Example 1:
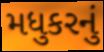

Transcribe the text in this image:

મધુકરનું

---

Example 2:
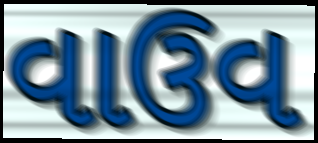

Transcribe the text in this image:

વાઉવ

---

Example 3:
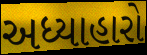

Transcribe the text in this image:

અધ્યાહારો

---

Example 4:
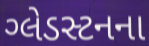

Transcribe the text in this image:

ગ્લેડસ્ટનના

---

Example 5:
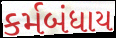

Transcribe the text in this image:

કર્મબંધાય